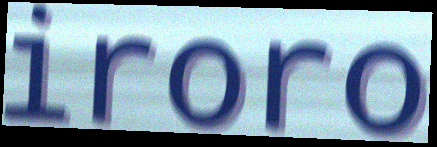
iroro